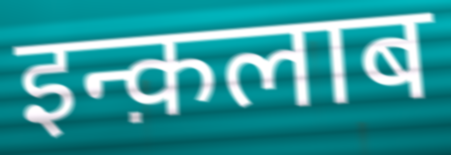
इन्क़लाब